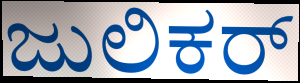
ಜುಲಿಕರ್